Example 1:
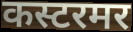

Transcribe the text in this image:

कस्टरमर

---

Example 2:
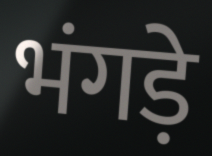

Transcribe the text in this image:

भंगड़े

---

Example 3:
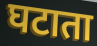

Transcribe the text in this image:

घटाता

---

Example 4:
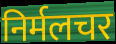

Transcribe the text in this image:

निर्मलचर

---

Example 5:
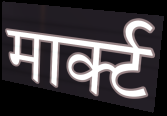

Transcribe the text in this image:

मार्क्ट